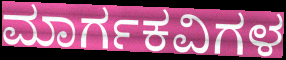
ಮಾರ್ಗಕವಿಗಳ